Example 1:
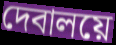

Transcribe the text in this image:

দেবালয়ে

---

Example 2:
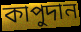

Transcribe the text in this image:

কাপুদান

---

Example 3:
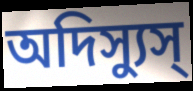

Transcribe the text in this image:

অদিস্যুস্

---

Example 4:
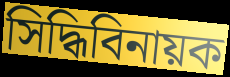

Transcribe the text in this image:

সিদ্ধিবিনায়ক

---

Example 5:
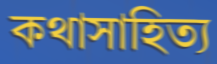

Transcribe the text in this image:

কথাসাহিত্য